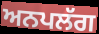
ਅਨਪਲੱਗ